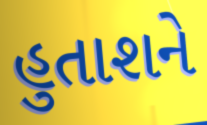
હુતાશને